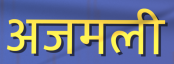
अजमली